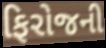
ફિરોજની